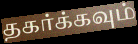
தகர்க்கவும்